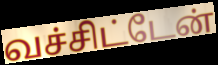
வச்சிட்டேன்